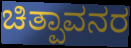
ಚಿತ್ಪಾವನರ